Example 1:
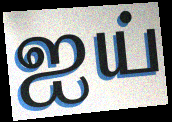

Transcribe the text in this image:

ஐய்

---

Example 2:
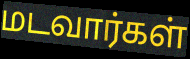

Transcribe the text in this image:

மடவார்கள்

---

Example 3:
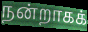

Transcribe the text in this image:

நன்றாகக்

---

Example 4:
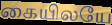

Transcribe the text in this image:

கையிலயே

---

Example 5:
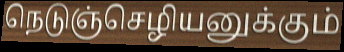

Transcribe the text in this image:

நெடுஞ்செழியனுக்கும்